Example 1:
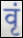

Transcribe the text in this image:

वृं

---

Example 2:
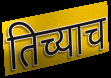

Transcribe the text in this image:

तिच्याच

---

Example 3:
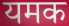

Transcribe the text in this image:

यमक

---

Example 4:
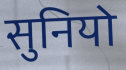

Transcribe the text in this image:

सुनियो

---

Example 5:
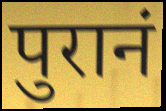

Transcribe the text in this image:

पुरानं